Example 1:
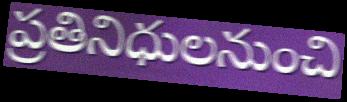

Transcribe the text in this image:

ప్రతినిధులనుంచి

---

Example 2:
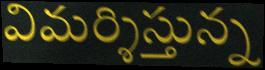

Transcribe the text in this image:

విమర్శిస్తున్న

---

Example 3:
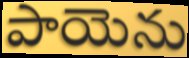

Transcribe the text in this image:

పాయెను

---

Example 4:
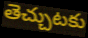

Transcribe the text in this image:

తెచ్చుటకు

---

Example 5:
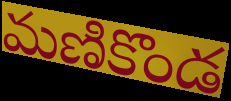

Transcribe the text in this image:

మణికొండ